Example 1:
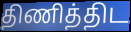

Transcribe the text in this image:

திணித்திட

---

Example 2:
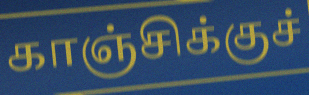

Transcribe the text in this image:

காஞ்சிக்குச்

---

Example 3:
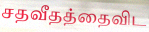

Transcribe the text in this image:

சதவீதத்தைவிட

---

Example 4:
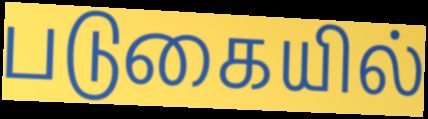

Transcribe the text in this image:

படுகையில்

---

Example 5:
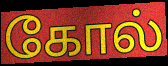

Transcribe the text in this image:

கோல்